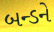
બન્ડને